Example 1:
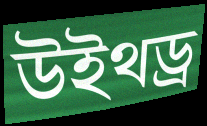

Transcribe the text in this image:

উইথড্র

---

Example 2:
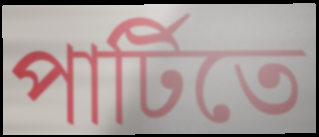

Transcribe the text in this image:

পার্টিতে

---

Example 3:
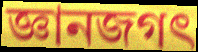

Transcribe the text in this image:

জ্ঞানজগৎ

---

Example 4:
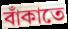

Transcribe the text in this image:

বাঁকাতে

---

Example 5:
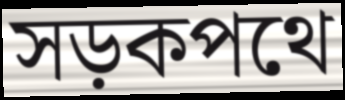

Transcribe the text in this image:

সড়কপথে